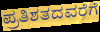
ಪ್ರತಿಶತದವರೆಗೆ